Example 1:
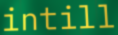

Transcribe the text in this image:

intill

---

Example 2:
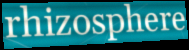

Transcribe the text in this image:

rhizosphere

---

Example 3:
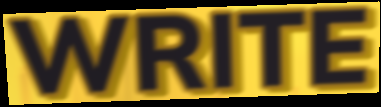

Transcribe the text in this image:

WRITE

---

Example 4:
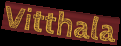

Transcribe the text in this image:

Vitthala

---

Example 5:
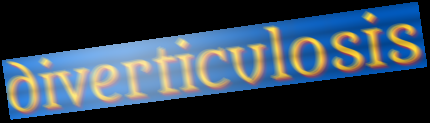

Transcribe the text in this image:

diverticulosis